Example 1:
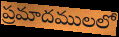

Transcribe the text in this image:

ప్రమాదములలో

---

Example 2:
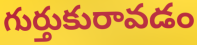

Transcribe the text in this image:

గుర్తుకురావడం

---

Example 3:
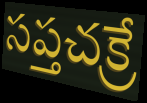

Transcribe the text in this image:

సప్తచక్రే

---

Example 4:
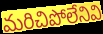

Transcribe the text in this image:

మరిచిపోలేనివి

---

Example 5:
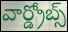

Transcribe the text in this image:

వార్డ్రోబ్స్